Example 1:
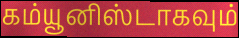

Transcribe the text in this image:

கம்யூனிஸ்டாகவும்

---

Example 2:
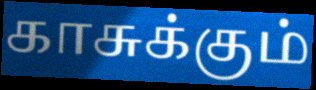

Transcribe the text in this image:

காசுக்கும்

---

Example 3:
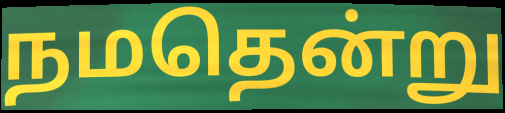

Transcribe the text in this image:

நமதென்று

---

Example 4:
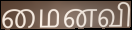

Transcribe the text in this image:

மைனவி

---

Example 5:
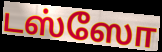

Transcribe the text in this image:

டஸ்ஸோ